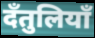
दँतुलियाँ